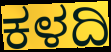
ಕಳದಿ